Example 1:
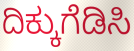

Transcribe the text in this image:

ದಿಕ್ಕುಗೆಡಿಸಿ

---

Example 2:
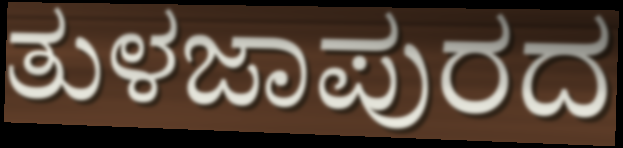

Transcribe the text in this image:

ತುಳಜಾಪುರದ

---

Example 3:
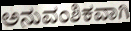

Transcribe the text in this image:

ಅನುವಂಶಿಕವಾಗಿ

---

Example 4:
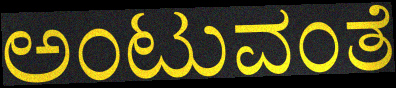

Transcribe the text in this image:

ಅಂಟುವಂತೆ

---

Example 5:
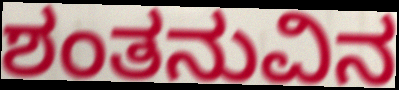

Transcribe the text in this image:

ಶಂತನುವಿನ